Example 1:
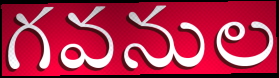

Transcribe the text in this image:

గవనుల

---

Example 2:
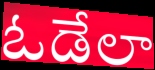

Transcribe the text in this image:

ఓడేలా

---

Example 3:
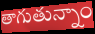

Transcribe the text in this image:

తాగుతున్నాం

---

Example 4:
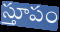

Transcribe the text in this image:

స్తూపం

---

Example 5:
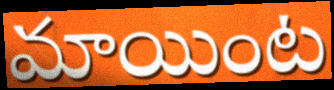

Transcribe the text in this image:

మాయింట